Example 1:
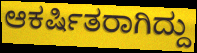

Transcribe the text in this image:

ಆಕರ್ಷಿತರಾಗಿದ್ದು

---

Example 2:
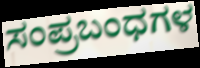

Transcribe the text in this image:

ಸಂಪ್ರಬಂಧಗಳ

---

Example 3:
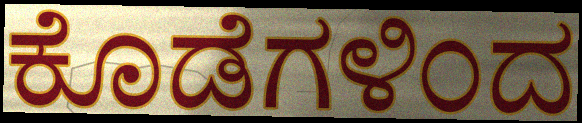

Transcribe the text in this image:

ಕೊಡೆಗಳಿಂದ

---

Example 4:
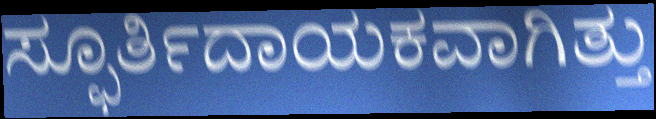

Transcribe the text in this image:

ಸ್ಫೂರ್ತಿದಾಯಕವಾಗಿತ್ತು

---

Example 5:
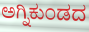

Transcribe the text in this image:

ಅಗ್ನಿಕುಂಡದ